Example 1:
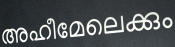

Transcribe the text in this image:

അഹീമേലെക്കും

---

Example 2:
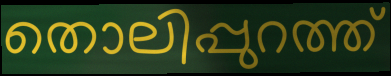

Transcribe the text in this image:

തൊലിപ്പുറത്ത്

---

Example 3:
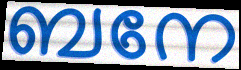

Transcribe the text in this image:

ബനേ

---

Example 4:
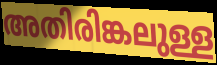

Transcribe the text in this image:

അതിരിങ്കലുള്ള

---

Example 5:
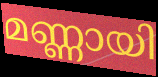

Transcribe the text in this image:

മണ്ണായി